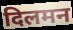
दिलमन